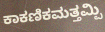
ಕಾಕಣಿಕಮತ್ತಮ್ಪಿ